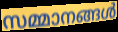
സമ്മാനങ്ങൾ